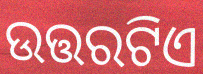
ଉତ୍ତରଟିଏ